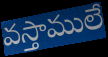
వస్తాములే